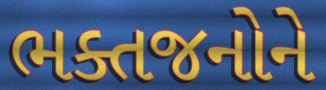
ભક્તજનોને